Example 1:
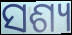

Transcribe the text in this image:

ସଶ୍ୟ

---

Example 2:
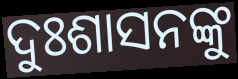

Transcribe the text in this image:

ଦୁଃଶାସନଙ୍କୁ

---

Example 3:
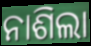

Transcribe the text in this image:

ନାଶିଲା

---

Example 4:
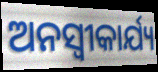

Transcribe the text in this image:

ଅନସ୍ବୀକାର୍ଯ୍ୟ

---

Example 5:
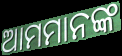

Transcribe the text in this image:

ଆମମାନଙ୍କ